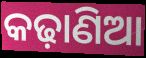
କଢ଼ାଣିଆ